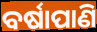
ବର୍ଷାପାଣି